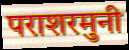
पराशरमुनी